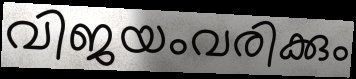
വിജയംവരിക്കും